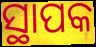
ସ୍ଥାପକ